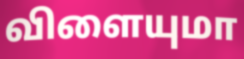
விளையுமா